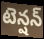
టెన్షన్